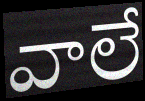
వాలే